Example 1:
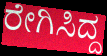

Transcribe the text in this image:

ರೇಗಿಸಿದ್ದ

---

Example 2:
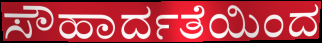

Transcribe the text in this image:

ಸೌಹಾರ್ದತೆಯಿಂದ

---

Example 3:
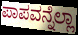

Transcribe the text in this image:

ಪಾಪವನ್ನೆಲ್ಲಾ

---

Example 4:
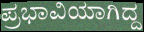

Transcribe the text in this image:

ಪ್ರಭಾವಿಯಾಗಿದ್ದ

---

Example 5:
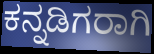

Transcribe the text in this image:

ಕನ್ನಡಿಗರಾಗಿ